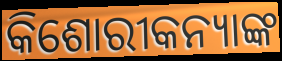
କିଶୋରୀକନ୍ୟାଙ୍କ